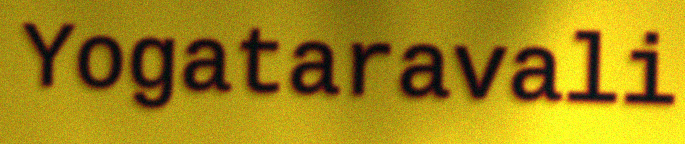
Yogataravali